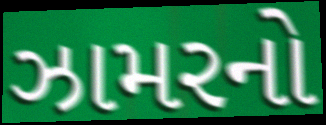
ઝામરનો